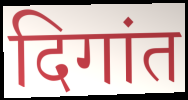
दिगांत